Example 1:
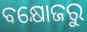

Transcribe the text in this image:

ବକ୍ଷୋଜରୁ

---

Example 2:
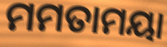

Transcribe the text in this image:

ମମତାମୟା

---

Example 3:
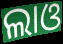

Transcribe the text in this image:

ଲାଓ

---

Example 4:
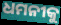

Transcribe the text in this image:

ଧମନୀକୁ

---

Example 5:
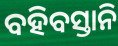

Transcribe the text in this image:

ବହିବସ୍ତାନି